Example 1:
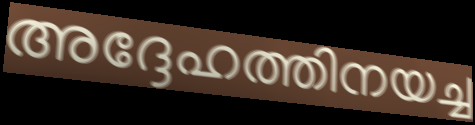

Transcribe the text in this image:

അദ്ദേഹത്തിനയച്ച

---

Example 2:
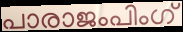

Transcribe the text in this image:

പാരാജംപിംഗ്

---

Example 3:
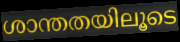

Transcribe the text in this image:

ശാന്തതയിലൂടെ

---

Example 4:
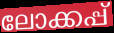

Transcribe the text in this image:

ലോക്കപ്പ്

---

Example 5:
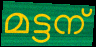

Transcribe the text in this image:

മട്ടന്